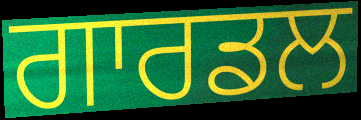
ਗਾਰਡਲ